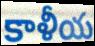
కాళీయ